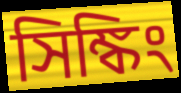
সিঙ্কিং